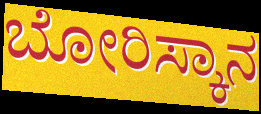
ಬೋರಿಸ್ಕಾನ